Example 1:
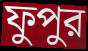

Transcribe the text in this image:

ফুপুর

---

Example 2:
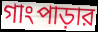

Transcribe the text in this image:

গাংপাড়ার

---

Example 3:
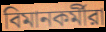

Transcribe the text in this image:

বিমানকর্মীরা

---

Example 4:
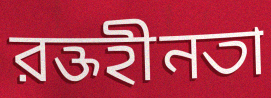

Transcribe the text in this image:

রক্তহীনতা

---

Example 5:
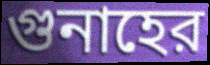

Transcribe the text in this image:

গুনাহের